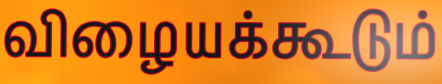
விழையக்கூடும்